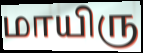
மாயிரு